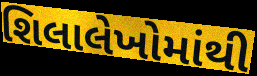
શિલાલેખોમાંથી